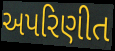
અપરિણીત